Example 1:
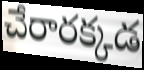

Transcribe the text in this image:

చేరారక్కడ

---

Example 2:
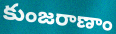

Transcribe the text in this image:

కుంజరాణాం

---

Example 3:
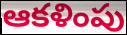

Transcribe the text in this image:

ఆకళింపు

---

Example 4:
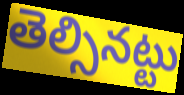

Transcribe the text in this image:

తెల్సినట్టు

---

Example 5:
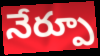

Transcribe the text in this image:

నేర్పూ